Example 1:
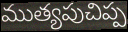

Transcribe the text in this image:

ముత్యపుచిప్ప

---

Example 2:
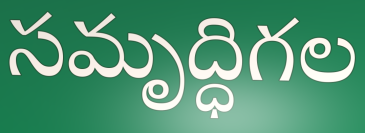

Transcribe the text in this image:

సమృద్ధిగల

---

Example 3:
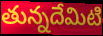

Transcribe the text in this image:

తున్నదేమిటి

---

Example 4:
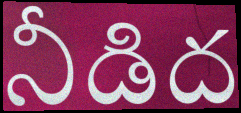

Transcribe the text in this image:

నీడిద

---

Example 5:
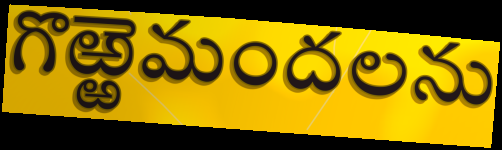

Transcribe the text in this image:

గొఱ్ఱెమందలను